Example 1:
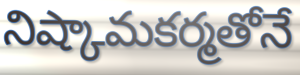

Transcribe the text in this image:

నిష్కామకర్మతోనే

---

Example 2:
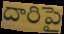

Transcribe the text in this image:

దారిపై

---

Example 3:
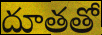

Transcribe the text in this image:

దూతతో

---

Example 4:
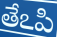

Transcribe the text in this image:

తేఽపి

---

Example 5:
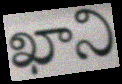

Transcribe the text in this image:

ఖాని